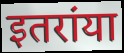
इतरांया